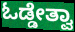
ಓಡ್ಡೇತ್ವಾ